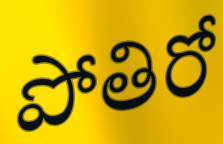
పోతిరో